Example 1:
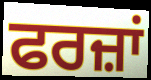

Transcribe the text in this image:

ਫਰਜ਼ਾਂ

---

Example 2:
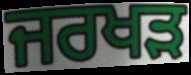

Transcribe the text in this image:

ਜਰਖੜ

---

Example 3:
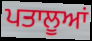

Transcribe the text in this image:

ਪਤਾਲੂਆਂ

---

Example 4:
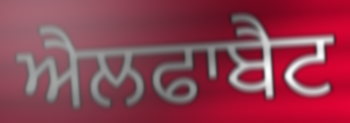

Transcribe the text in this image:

ਐਲਫਾਬੈਟ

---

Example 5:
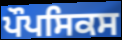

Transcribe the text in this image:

ਪੌਪਸਿਕਸ